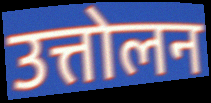
उत्तोलन